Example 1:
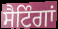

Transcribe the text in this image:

ਸੈਟਿੰਗਾਂ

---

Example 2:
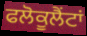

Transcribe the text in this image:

ਫਲੋਕੂਲੈਂਟਾਂ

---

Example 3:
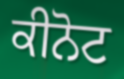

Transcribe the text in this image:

ਕੀਨੋਟ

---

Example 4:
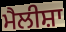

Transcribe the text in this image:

ਮੈਲੀਸ਼ਾ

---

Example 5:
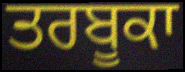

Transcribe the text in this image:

ਤਰਬੂਕਾ